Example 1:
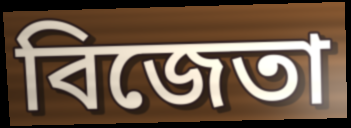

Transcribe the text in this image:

বিজেতা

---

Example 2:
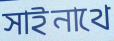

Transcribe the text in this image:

সাইনাথে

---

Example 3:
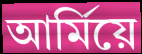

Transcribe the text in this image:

আৰ্মিয়ে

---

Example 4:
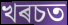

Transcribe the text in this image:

খৰচত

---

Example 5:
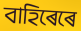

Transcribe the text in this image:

বাহিৰেৰে